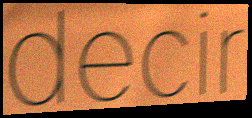
decir